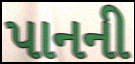
પાનની